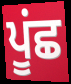
ਪੂਂਛ